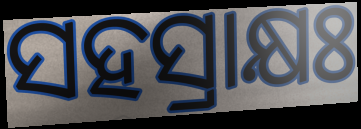
ସହସ୍ରାକ୍ଷଃ